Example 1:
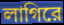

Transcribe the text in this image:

লাগিরে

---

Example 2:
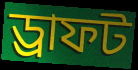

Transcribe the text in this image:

ড্রাফট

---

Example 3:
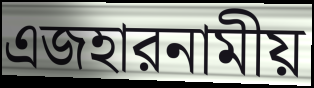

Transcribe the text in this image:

এজহারনামীয়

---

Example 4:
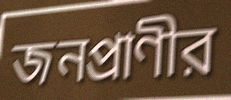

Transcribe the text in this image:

জনপ্রাণীর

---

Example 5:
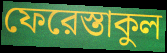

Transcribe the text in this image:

ফেরেস্তাকুল